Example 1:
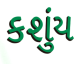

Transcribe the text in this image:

કશુંય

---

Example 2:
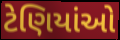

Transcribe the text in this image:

ટેણિયાંઓ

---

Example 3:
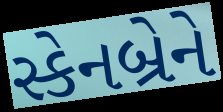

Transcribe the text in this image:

સ્કેનબ્રેને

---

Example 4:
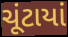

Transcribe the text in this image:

ચૂંટાયાં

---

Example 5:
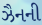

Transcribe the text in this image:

ઝૈનની